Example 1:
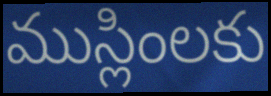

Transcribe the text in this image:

ముస్లింలకు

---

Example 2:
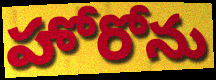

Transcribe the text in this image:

హోరోను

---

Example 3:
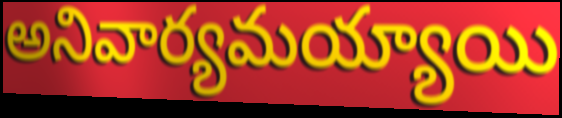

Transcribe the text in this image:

అనివార్యమయ్యాయి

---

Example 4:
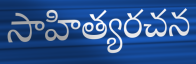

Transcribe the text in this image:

సాహిత్యరచన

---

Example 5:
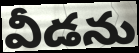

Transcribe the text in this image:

వీడను